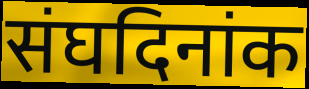
संघदिनांक